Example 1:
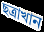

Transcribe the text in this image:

ছত্রাখান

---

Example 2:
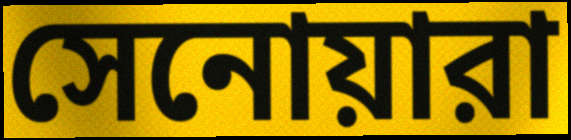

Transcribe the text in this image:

সেনোয়ারা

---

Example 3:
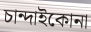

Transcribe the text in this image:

চান্দাইকোনা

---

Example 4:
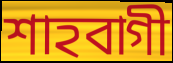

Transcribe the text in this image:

শাহবাগী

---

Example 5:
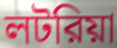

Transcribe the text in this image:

লটরিয়া